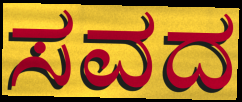
ಸವದ